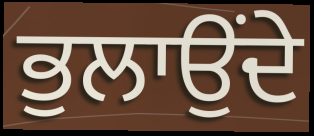
ਭੁਲਾਉਂਦੇ